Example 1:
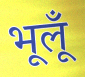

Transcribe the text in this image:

भूलूँ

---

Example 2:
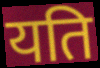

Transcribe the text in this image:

यति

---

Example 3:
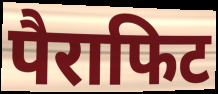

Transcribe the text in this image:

पैराफिट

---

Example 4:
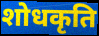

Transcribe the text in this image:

शोधकृति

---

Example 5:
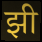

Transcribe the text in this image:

झी